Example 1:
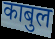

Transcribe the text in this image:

काबुल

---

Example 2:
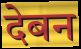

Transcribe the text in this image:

देबन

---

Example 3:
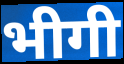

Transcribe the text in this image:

भीगी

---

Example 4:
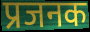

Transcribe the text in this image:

प्रजनक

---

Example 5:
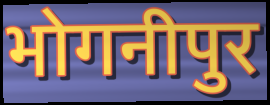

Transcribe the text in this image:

भोगनीपुर